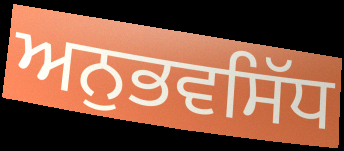
ਅਨੁਭਵਸਿੱਧ